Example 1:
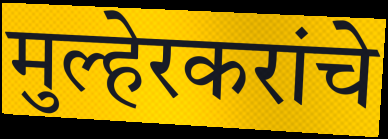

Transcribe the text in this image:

मुल्हेरकरांचे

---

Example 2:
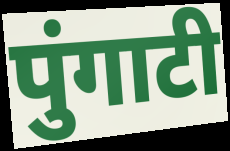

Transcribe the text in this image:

पुंगाटी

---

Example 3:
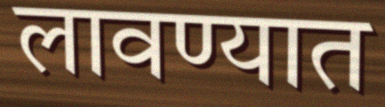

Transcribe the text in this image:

लावण्यात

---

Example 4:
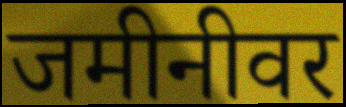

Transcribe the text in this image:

जमीनीवर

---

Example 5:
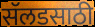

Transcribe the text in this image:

सॅलडसाठी